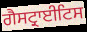
ਗੈਸਟ੍ਰਾਈਟਿਸ